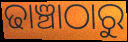
ଢାଞ୍ଚାଠାରୁ